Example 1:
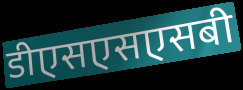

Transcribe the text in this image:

डीएसएसएसबी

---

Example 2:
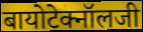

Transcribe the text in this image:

बायोटेक्नॉलजी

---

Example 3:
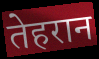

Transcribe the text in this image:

तेहरान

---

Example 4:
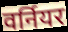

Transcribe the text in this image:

वर्नियर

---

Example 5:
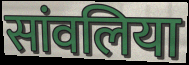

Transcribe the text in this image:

सांवलिया